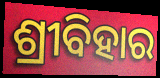
ଶ୍ରୀବିହାର